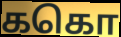
ககொ